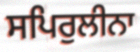
ਸਪਿਰੁਲੀਨਾ